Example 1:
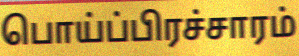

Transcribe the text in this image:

பொய்ப்பிரச்சாரம்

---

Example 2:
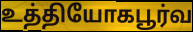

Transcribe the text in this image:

உத்தியோகபூர்வ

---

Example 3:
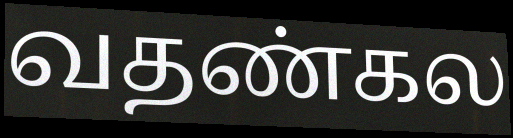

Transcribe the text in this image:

வதண்கல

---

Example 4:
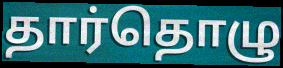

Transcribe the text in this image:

தார்தொழு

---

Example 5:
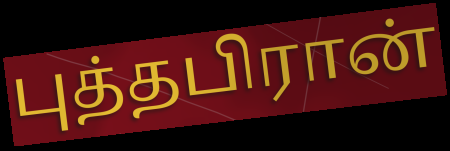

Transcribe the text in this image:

புத்தபிரான்